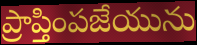
ప్రాప్తింపజేయును